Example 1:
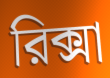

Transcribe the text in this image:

রিক্সা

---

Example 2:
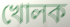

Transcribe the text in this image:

খোলক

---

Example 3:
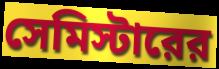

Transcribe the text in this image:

সেমিস্টারের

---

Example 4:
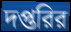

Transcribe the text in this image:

দপ্তরির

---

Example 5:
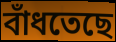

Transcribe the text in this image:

বাঁধতেছে